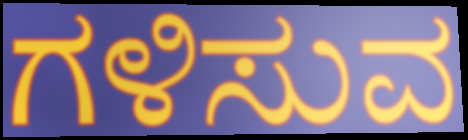
ಗಳಿಸುವ